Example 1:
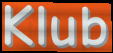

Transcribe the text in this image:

Klub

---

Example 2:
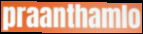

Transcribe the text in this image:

praanthamlo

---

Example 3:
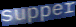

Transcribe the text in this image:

supper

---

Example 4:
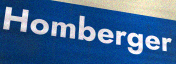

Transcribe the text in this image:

Homberger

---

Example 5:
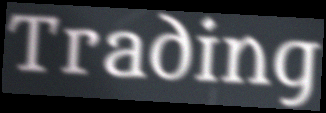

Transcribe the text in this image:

Trading